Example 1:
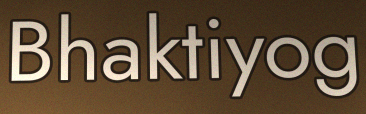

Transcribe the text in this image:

Bhaktiyog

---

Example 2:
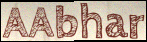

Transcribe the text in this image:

AAbhar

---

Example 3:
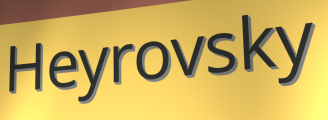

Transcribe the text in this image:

Heyrovsky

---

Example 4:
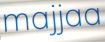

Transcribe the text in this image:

majjaa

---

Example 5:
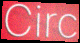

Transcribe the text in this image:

Circ